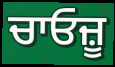
ਚਾਓਜ਼ੂ